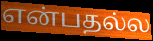
என்பதல்ல